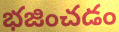
భజించడం